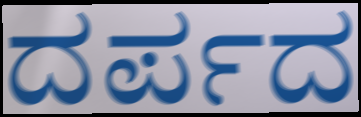
ದರ್ಪದ